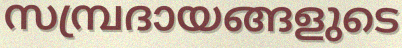
സമ്പ്രദായങ്ങളുടെ